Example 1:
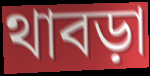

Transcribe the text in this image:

থাবড়া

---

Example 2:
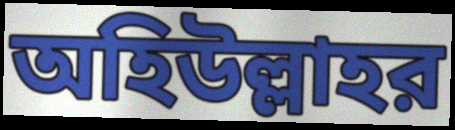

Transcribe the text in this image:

অহিউল্লাহর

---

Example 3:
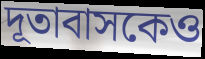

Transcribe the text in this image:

দূতাবাসকেও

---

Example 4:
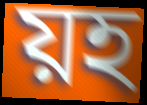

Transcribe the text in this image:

য়হ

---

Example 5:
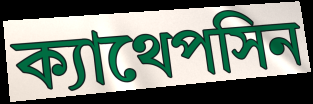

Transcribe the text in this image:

ক্যাথেপসিন